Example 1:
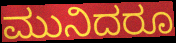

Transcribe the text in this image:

ಮುನಿದರೂ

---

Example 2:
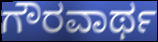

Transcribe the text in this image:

ಗೌರವಾರ್ಥ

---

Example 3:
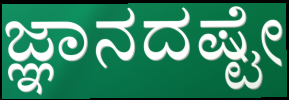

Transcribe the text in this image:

ಜ್ಞಾನದಷ್ಟೇ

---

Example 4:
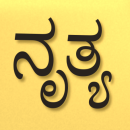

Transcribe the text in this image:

ನೃತ್ಯ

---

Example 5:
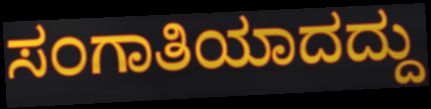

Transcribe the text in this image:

ಸಂಗಾತಿಯಾದದ್ದು